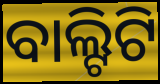
ବାଲ୍ଟିଟି